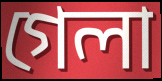
গেলা